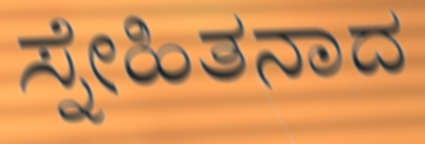
ಸ್ನೇಹಿತನಾದ